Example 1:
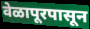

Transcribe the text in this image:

वेळापूरपासून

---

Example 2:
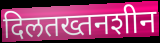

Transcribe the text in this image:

दिलतख्तनशीन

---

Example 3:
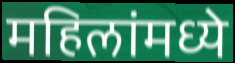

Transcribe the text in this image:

महिलांमध्ये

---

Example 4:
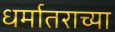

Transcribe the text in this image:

धर्मातराच्या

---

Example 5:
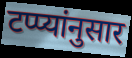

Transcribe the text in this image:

टप्प्यांनुसार